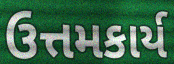
ઉત્તમકાર્ય